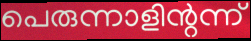
പെരുന്നാളിന്റന്ന്